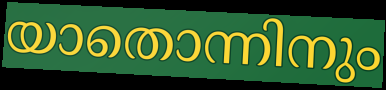
യാതൊന്നിനും